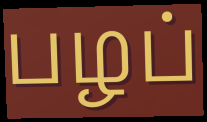
பழப்